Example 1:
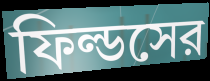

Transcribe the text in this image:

ফিল্ডসের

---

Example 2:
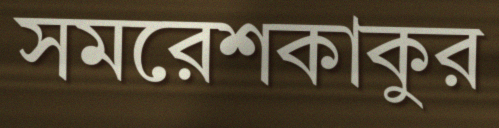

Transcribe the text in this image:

সমরেশকাকুর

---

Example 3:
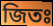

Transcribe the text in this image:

জিতঃ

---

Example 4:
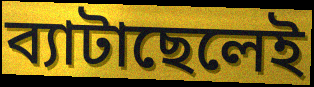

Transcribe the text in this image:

ব্যাটাছেলেই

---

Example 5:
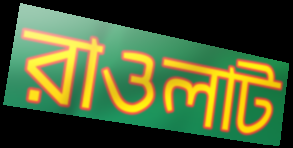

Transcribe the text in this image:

রাওলাট